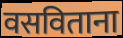
वसविताना